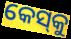
କେସ୍‌କୁ